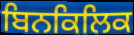
ਬਿਨਕਿਲਿਕ